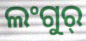
ଲଂଗୁର୍